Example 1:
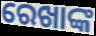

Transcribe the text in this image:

ରେଖାଙ୍କ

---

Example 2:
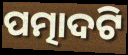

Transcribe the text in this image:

ପତ୍ମାଦଟି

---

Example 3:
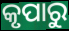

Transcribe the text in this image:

କୃପାରୁ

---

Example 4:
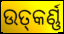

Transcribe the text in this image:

ଉତ୍‍କର୍ଣ୍ଣ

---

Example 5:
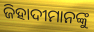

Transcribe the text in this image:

ଜିହାଦୀମାନଙ୍କୁ